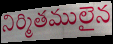
నిర్మితములైన